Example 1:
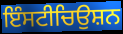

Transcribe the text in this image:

ਇੰਸਟੀਚਿਉਸ਼ਨ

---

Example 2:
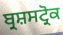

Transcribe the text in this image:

ਬ੍ਰਸ਼ਸਟ੍ਰੋਕ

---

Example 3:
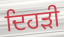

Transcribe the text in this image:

ਦਿਹੜੀ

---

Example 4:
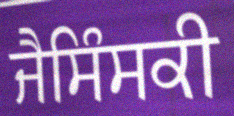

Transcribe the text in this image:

ਜੈਸਿੰਸਕੀ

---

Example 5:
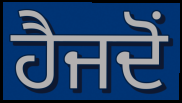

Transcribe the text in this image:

ਹੈਜਦੋਂ